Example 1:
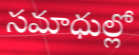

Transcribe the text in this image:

సమాధుల్లో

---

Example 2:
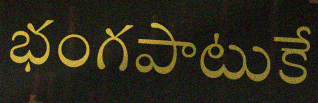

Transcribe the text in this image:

భంగపాటుకే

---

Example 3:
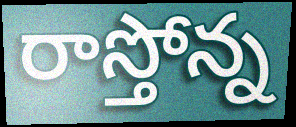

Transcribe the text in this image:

రాస్తోన్న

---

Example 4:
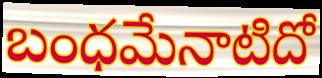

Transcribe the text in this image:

బంధమేనాటిదో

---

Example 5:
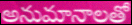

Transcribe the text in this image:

అనుమానాలతో